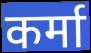
कर्मा